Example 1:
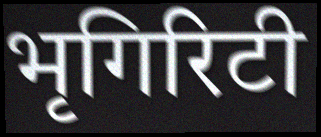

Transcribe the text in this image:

भृगिरिटी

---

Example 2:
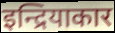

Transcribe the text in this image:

इन्द्रियाकार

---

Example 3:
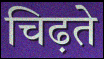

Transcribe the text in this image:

चिढ़ते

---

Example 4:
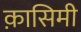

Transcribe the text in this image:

क़ासिमी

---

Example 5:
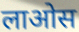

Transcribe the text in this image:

लाओस